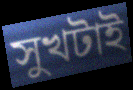
সুখটাই